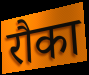
रौका